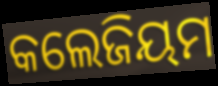
କଲେଜିୟମ